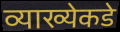
व्याख्येकडे